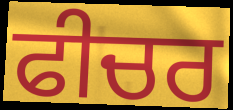
ਫੀਚਰ